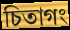
চিতাগং